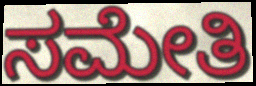
ಸಮೇತಿ